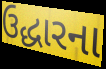
ઉદ્ધારના